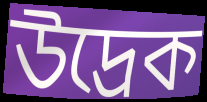
উদ্রেক